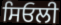
ਸਿਓਲੀ